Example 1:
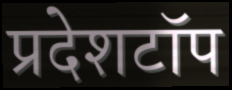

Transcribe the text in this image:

प्रदेशटॉप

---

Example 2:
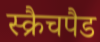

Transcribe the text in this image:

स्क्रैचपैड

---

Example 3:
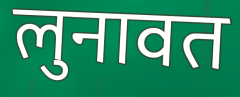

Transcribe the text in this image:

लुनावत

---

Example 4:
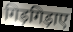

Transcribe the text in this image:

गिड़गिड़ाए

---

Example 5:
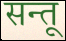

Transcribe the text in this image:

सन्तू